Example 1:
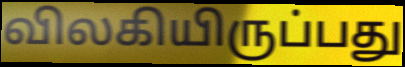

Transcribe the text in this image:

விலகியிருப்பது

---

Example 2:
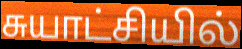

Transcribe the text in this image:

சுயாட்சியில்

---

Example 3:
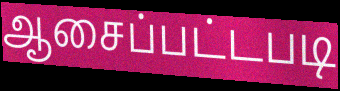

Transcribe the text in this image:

ஆசைப்பட்டபடி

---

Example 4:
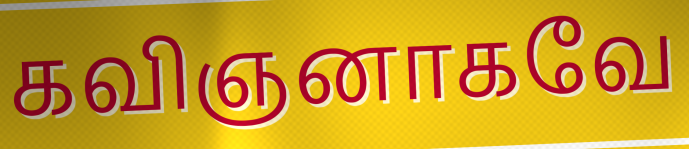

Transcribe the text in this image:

கவிஞனாகவே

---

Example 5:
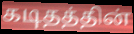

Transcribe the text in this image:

கடிதத்தின்